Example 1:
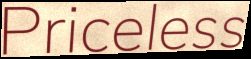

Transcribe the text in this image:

Priceless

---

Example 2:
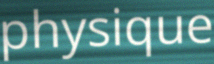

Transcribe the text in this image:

physique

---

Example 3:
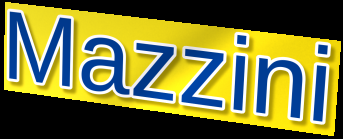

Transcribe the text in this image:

Mazzini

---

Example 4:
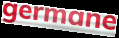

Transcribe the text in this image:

germane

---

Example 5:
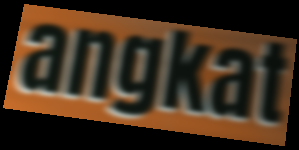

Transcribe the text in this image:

angkat